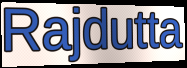
Rajdutta